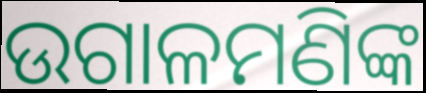
ଉଗାଳମଣିଙ୍କ